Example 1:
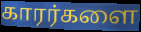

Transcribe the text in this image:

காரர்களை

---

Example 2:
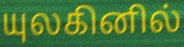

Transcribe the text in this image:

யுலகினில்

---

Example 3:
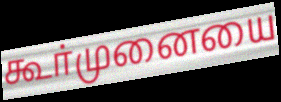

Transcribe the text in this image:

கூர்முனையை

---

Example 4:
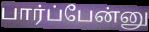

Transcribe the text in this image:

பார்ப்பேன்னு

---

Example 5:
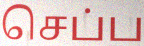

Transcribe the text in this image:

செப்ப